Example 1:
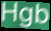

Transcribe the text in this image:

Hgb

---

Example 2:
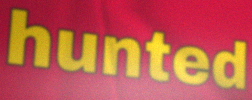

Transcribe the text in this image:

hunted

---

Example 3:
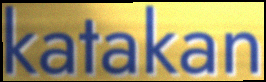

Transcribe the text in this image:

katakan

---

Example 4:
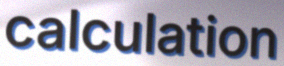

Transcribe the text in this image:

calculation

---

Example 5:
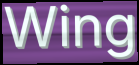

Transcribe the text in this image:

Wing